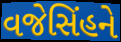
વજેસિંહને